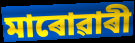
মাৰোৱাৰী